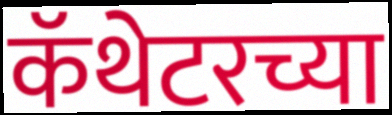
कॅथेटरच्या